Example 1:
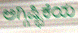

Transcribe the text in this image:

ಅಗ್ಗಿಷ್ಟಿಕೆಯ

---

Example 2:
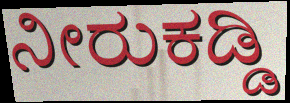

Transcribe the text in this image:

ನೀರುಕಡ್ಡಿ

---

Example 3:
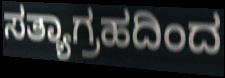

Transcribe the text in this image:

ಸತ್ಯಾಗ್ರಹದಿಂದ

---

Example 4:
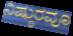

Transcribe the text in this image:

ನಿಷ್ಠುರವೂ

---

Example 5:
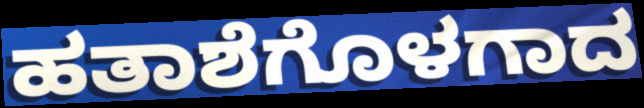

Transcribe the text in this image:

ಹತಾಶೆಗೊಳಗಾದ